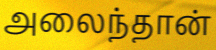
அலைந்தான்